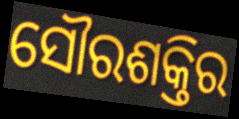
ସୌରଶକ୍ତିର